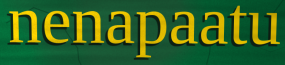
nenapaatu